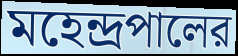
মহেন্দ্রপালের